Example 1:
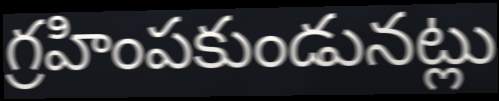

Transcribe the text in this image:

గ్రహింపకుండునట్లు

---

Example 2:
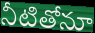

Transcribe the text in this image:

నీటితోనూ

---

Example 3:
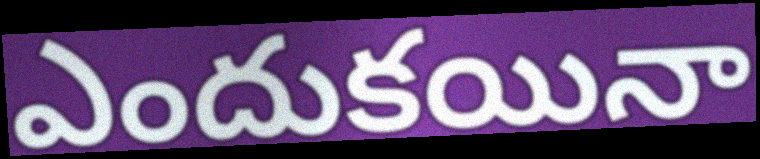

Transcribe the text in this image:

ఎందుకయినా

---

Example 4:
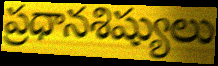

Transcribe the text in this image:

ప్రధానశిష్యులు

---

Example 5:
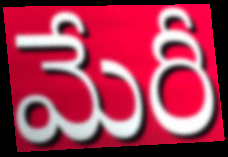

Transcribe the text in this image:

మేరీ